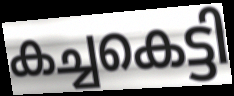
കച്ചകെട്ടി